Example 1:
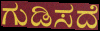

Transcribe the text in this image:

ಗುಡಿಸದೆ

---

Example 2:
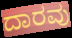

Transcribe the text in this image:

ದಾರವು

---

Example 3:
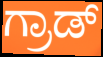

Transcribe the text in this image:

ಗ್ರಾಡ್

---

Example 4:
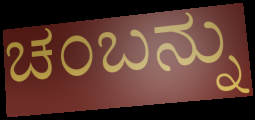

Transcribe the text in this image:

ಚಂಬನ್ನು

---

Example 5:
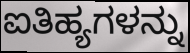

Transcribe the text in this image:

ಐತಿಹ್ಯಗಳನ್ನು